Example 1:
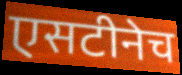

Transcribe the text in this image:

एसटीनेच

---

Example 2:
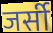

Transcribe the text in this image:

जर्सी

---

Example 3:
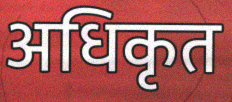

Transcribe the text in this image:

अधिकृत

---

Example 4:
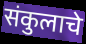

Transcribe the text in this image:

संकुलाचे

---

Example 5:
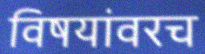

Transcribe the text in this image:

विषयांवरच